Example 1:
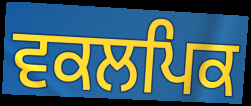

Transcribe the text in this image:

ਵਕਲਪਿਕ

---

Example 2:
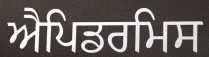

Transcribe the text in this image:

ਐਪਿਡਰਮਿਸ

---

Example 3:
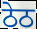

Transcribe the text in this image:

ਠੇਠ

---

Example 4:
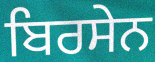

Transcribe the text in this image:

ਬਿਰਸੇਨ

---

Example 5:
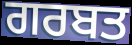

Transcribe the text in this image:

ਗਰਬਤ